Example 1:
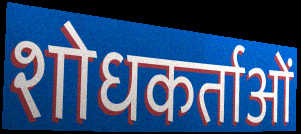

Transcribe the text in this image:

शोधकर्ताओं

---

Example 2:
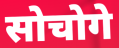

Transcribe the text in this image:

सोचोगे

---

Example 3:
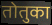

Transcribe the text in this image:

तोतुका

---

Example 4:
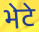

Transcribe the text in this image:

भेटे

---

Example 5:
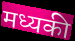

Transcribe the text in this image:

मध्यकी